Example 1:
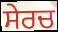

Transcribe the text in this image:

ਸੇਰਚ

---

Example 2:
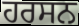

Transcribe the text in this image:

ਹਰਸਨ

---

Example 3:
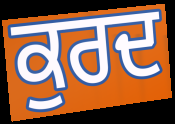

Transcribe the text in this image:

ਕੁਰਦ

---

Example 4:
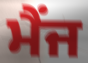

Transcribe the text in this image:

ਮੈਂਜ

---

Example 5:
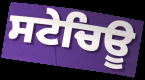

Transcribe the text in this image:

ਸਟੇਚਿਊ